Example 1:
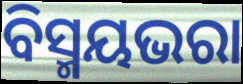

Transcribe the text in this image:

ବିସ୍ମୟଭରା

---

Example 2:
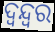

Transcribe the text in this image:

ଦ୍ଵନ୍ଦ୍ୱର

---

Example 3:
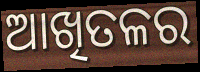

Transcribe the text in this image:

ଆଖିତଳର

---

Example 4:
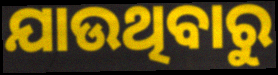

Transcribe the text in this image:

ଯାଉଥିବାରୁ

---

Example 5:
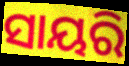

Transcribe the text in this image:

ସାୟରି